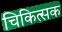
चिकित्‍सक